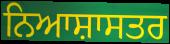
ਨਿਆਸ਼ਾਸਤਰ